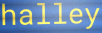
halley